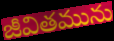
జీవితమును